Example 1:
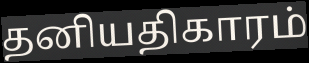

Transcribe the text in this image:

தனியதிகாரம்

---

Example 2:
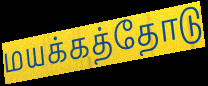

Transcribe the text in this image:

மயக்கத்தோடு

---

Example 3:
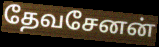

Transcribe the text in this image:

தேவசேனன்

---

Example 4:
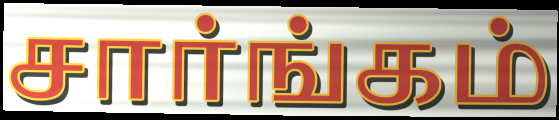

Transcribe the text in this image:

சார்ங்கம்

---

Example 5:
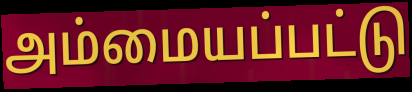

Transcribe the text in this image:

அம்மையப்பட்டு